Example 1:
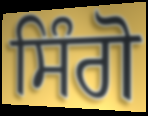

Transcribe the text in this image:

ਸਿੰਗੋ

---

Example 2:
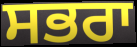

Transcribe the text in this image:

ਸਭਰਾ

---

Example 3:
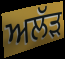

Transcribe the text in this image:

ਅਲੱੜ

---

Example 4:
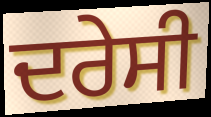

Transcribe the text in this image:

ਦਰੇਸੀ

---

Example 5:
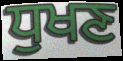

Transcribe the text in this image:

ਧੁਖਣ